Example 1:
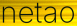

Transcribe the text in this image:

netao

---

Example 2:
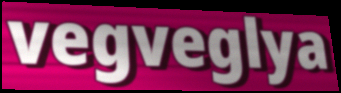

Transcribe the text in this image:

vegveglya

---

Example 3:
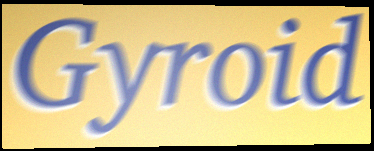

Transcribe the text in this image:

Gyroid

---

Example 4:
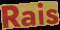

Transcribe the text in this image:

Rais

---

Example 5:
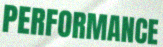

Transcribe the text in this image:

PERFORMANCE